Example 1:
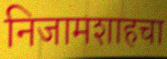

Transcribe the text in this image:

निजामशाहचा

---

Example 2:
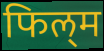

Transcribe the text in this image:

फिल्म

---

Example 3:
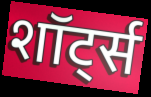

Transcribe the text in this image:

शॉर्ट्स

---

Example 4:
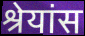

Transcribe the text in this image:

श्रेयांस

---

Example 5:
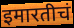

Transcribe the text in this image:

इमारतीचं